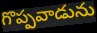
గొప్పవాడును